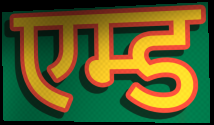
एम्ड